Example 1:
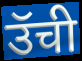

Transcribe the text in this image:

उॅची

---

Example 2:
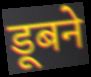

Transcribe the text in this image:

डूबने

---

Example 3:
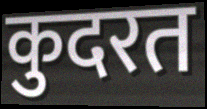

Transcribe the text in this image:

कुदरत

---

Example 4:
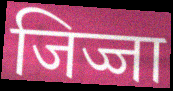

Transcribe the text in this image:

जिज्जा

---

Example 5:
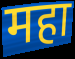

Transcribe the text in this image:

महा